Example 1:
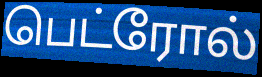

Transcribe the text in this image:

பெட்ரோல்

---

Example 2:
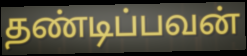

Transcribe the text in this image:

தண்டிப்பவன்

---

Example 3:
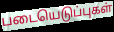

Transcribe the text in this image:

படையெடுப்புகள்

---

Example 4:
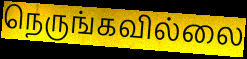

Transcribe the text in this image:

நெருங்கவில்லை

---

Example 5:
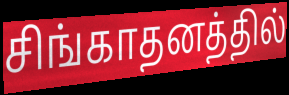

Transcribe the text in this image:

சிங்காதனத்தில்